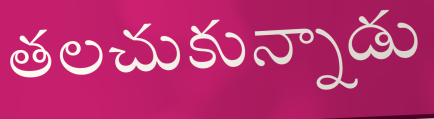
తలచుకున్నాడు